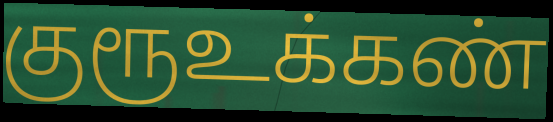
குரூஉக்கண்